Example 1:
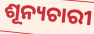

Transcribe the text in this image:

ଶୂନ୍ୟଚାରୀ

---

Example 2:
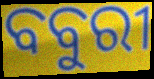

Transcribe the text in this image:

ବବୁରୀ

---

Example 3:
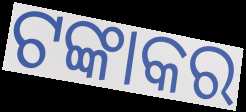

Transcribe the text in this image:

ଟଙ୍କାକର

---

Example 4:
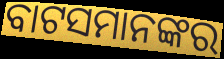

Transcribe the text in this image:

ବାଟସମାନଙ୍କର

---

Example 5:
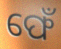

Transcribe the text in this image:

ଫେଁ